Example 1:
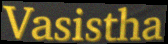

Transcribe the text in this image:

Vasistha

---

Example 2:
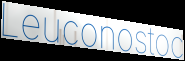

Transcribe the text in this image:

Leuconostoc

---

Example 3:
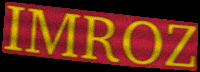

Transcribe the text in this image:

IMROZ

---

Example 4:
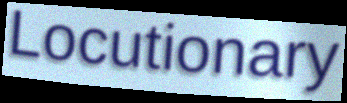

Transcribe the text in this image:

Locutionary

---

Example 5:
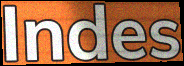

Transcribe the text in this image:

Indes